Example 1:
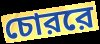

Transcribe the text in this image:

চোররে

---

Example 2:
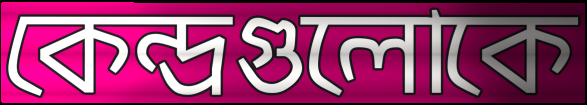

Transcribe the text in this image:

কেন্দ্রগুলোকে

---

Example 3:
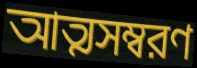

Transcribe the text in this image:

আত্মসম্বরণ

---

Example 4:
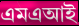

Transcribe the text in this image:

এমএআই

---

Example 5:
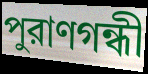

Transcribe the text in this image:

পুরাণগন্ধী